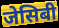
जेसिबी